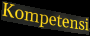
Kompetensi